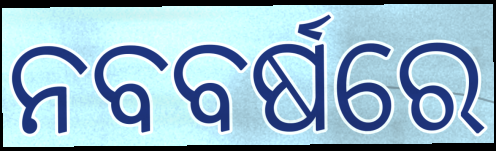
ନବବର୍ଷରେ